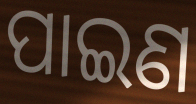
ପାଇଣ